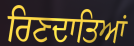
ਰਿਣਦਾਤਿਆਂ